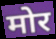
मोर